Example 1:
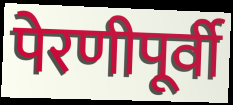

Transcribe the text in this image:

पेरणीपूर्वी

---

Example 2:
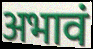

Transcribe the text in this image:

अभावं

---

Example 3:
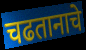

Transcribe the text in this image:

चढतानाचे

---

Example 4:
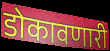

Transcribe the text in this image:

डोकावणारी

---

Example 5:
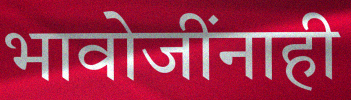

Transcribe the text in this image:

भावोजींनाही